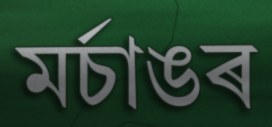
মৰ্চাঙৰ